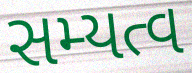
સમ્યત્વ